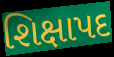
શિક્ષાપદ